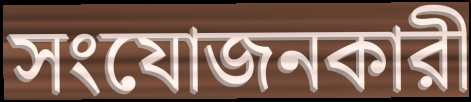
সংযোজনকারী